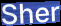
Sher